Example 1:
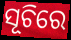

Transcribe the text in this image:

ସୂଚିରେ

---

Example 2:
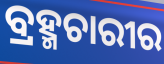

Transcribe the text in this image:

ବ୍ରହ୍ମଚାରୀର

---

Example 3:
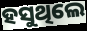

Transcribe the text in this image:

ହସୁଥିଲେ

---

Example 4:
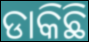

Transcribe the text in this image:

ଡାକିଛି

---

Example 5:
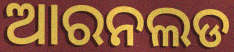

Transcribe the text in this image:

ଆରନଲଡ